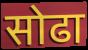
सोढा